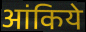
आंकिये